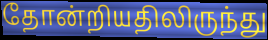
தோன்றியதிலிருந்து